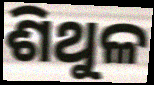
ଶିଥୁଳ